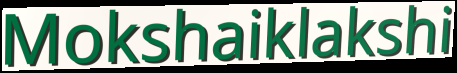
Mokshaiklakshi